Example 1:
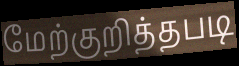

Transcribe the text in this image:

மேற்குறித்தபடி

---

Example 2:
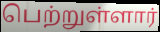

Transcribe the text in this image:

பெற்றுள்ளார்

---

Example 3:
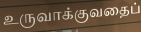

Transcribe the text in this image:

உருவாக்குவதைப்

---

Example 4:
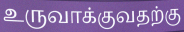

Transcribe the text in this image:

உருவாக்குவதற்கு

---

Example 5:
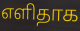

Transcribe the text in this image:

எளிதாக